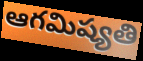
ఆగమిష్యతి